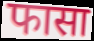
फासा